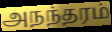
அநந்தரம்